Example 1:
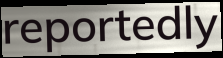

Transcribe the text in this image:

reportedly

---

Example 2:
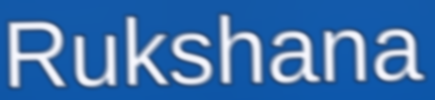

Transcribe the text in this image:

Rukshana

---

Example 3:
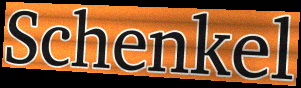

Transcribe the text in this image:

Schenkel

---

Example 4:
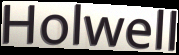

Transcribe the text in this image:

Holwell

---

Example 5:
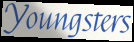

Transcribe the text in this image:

Youngsters